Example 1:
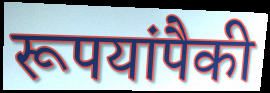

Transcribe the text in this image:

रूपयांपैकी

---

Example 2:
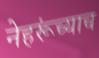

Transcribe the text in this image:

नेहरूंच्याच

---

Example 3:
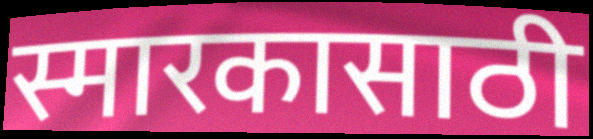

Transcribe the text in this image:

स्मारकासाठी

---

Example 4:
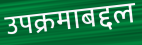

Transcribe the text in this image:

उपक्रमाबद्दल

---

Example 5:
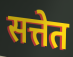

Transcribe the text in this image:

सत्तेत